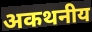
अकथनीय